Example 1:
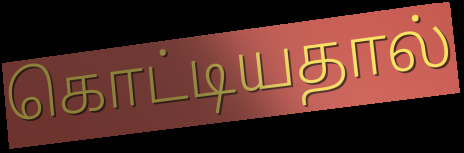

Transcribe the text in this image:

கொட்டியதால்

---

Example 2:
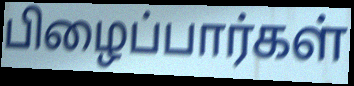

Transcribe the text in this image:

பிழைப்பார்கள்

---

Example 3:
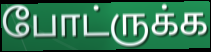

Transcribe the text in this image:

போட்ருக்க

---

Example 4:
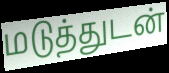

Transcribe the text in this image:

மடுத்துடன்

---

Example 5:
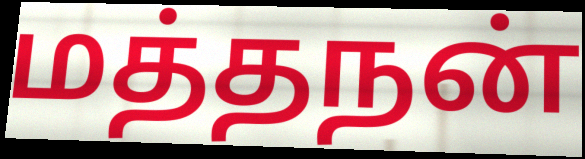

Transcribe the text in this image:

மத்தநன்